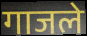
गाजले